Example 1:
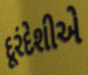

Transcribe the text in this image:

દૂરંદેશીએ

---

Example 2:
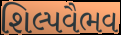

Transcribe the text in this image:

શિલ્પવૈભવ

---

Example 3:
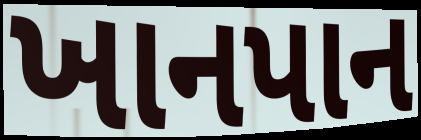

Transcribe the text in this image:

ખાનપાન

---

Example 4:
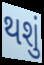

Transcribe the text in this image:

થશું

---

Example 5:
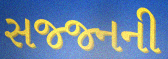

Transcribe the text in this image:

સજ્જ્નની